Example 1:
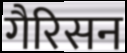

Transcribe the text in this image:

गैरिसन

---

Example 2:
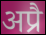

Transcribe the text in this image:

अप्रै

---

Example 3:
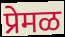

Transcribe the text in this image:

प्रेमळ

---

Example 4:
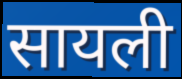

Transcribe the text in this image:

सायली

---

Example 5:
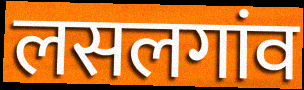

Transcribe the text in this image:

लसलगांव